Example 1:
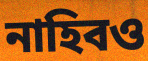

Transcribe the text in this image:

নাহিবও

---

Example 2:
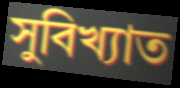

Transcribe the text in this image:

সুবিখ্যাত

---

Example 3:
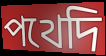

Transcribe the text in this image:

পথেদি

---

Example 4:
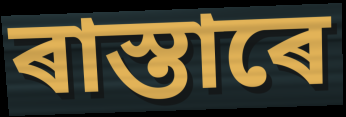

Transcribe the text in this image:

ৰাস্তাৰে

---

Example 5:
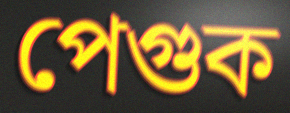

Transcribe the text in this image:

পেগুক